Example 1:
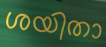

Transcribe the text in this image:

ശയിതാ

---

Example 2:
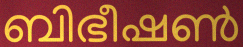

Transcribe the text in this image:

ബിഭീഷൺ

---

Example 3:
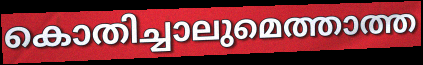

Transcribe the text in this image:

കൊതിച്ചാലുമെത്താത്ത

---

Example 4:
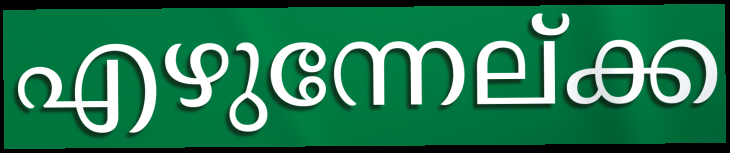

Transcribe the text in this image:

എഴുന്നേല്ക്ക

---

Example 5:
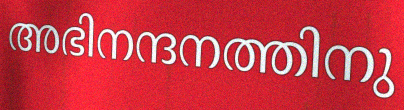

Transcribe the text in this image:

അഭിനന്ദനത്തിനു